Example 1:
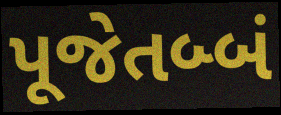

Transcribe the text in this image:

પૂજેતબ્બં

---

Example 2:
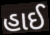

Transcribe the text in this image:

હાઈ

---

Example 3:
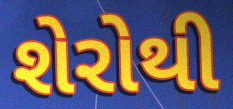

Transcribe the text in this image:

શેરોથી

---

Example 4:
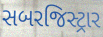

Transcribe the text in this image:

સબરજિસ્ટ્રાર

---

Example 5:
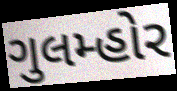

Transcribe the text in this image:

ગુલમ્હોર